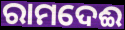
ରାମଦେଈ